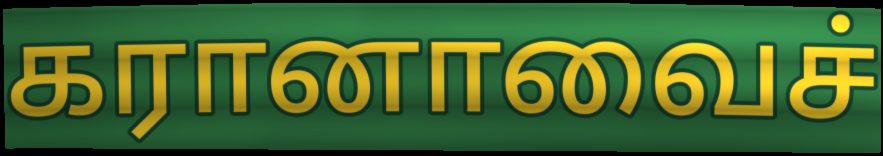
கரானாவைச்